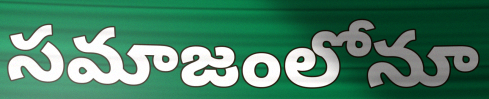
సమాజంలోనూ